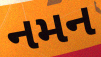
નમન